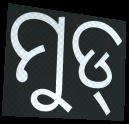
ମୁଡ୍